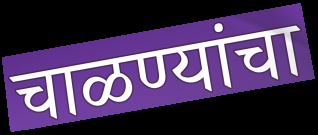
चाळण्यांचा